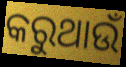
କରୁଥାଉଁ